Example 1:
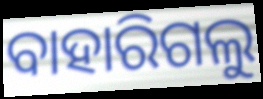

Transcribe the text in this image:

ବାହାରିଗଲୁ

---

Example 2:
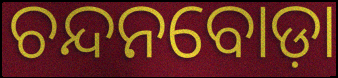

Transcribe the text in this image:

ଚନ୍ଦନବୋଡ଼ା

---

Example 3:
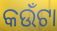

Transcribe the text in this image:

କଉଁଟା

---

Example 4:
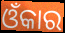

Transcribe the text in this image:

ଓଁକାର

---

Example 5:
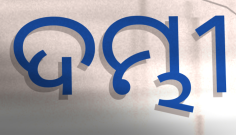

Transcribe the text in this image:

ଦମ୍ଭୀ